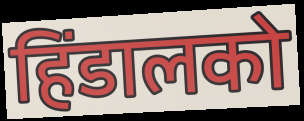
हिंडालको